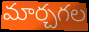
మార్చగల